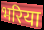
भरिया